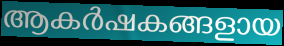
ആകർഷകങ്ങളായ